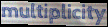
multiplicity